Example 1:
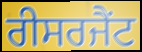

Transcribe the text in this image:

ਰੀਸਰਜੈਂਟ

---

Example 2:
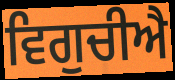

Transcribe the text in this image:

ਵਿਗੁਚੀਐ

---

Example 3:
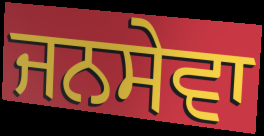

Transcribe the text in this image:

ਜਨਸੇਵਾ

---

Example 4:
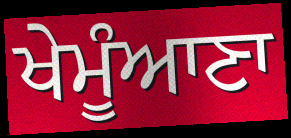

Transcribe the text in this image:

ਖੇਮੂੰਆਣਾ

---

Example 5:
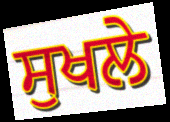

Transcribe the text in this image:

ਸੁਖਲੇ